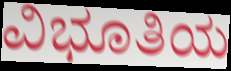
ವಿಭೂತಿಯ